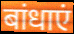
बांधाएं